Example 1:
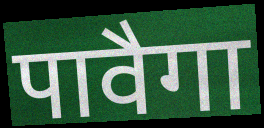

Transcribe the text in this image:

पावैगा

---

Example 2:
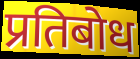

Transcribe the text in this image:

प्रतिबोध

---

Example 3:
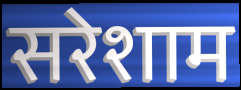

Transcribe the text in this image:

सरेशाम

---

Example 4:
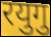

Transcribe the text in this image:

रयुगु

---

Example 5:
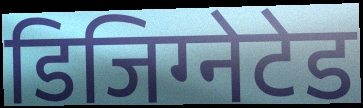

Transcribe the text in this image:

डिजिग्नेटेड